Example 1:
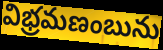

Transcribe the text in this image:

విభ్రమణంబును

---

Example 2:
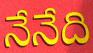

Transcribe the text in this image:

నేనేది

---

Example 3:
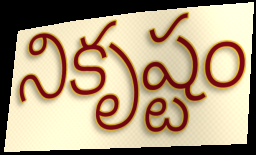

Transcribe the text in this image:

నికృష్టం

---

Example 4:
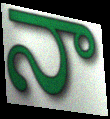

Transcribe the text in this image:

నా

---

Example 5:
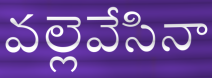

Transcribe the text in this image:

వల్లెవేసినా